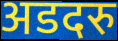
अडदरु